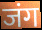
जंग